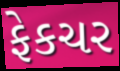
ફેકચર